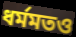
ধর্মমতও